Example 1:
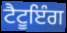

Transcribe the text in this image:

ਟੈਟੂਇੰਗ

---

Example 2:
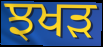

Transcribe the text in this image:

ਝਖੜ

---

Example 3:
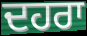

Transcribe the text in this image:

ਦਹਰਾ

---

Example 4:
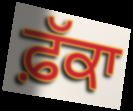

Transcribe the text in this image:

ਫ਼ੱਕਾ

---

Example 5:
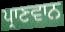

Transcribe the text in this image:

ਪ੍ਰਾਣਵਾਨ